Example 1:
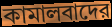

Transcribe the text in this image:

কামালবাদের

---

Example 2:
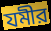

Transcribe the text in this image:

যমীর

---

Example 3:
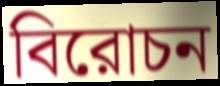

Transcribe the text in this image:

বিরোচন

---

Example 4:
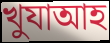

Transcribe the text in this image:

খুযাআহ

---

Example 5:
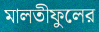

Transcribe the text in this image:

মালতীফুলের